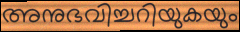
അനുഭവിച്ചറിയുകയും